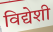
विद्येशी